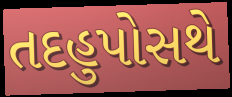
તદહુપોસથે